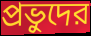
প্রভুদের